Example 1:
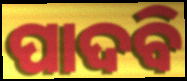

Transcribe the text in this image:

ପାଦବି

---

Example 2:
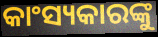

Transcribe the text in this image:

କାଂସ୍ୟକାରଙ୍କୁ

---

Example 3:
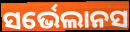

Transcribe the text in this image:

ସର୍ଭେଲାନସ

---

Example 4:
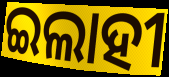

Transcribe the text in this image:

ଇଲାହୀ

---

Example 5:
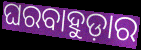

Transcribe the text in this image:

ଘରବାହୁଡ଼ାର